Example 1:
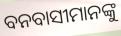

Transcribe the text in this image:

ବନବାସୀମାନଙ୍କୁ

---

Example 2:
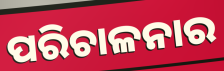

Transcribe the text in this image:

ପରିଚାଳନାର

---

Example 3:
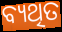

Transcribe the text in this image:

ବ୍ୟଥିତ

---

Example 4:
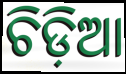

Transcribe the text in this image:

ଚିଡ଼ିଆ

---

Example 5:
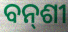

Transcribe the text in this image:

ବନ୍‍ଶୀ